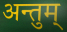
अन्तुम्